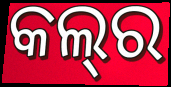
କଲ୍‌ର